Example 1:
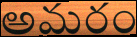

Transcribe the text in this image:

అమరం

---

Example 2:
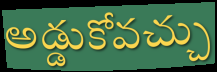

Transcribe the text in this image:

అడ్డుకోవచ్చు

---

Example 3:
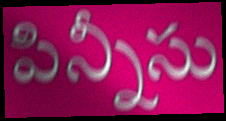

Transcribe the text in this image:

పిన్నీసు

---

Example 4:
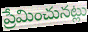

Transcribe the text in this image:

ప్రేమించునట్లు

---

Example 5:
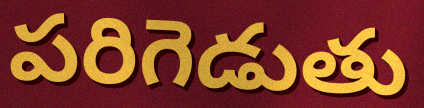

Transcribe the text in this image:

పరిగెడుతు